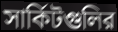
সার্কিটগুলির